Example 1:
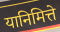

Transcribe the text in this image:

यानिमित्ते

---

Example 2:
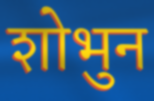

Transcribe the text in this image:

शोभुन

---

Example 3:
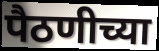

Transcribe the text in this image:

पैठणीच्या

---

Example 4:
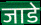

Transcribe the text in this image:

जाडे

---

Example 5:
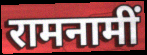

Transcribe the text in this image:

रामनामीं